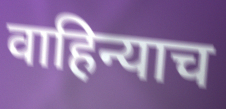
वाहिन्याच